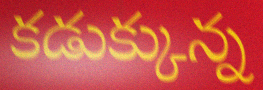
కడుక్కున్న